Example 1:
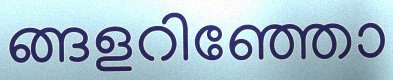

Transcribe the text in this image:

ങ്ങളറിഞ്ഞോ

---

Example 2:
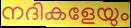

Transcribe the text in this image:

നദികളേയും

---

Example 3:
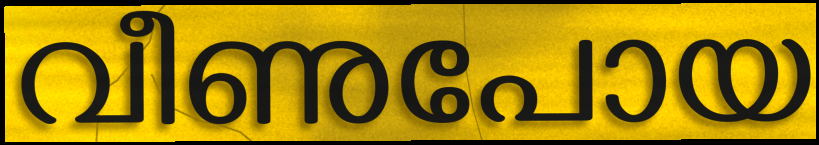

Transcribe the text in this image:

വീണുപോയ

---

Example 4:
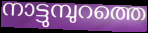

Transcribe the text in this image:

നാട്ടുമ്പുറത്തെ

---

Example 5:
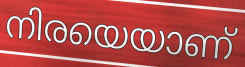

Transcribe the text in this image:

നിരയെയാണ്